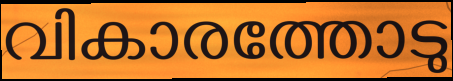
വികാരത്തോടു